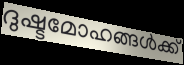
ദുഷ്ടമോഹങ്ങൾക്ക്